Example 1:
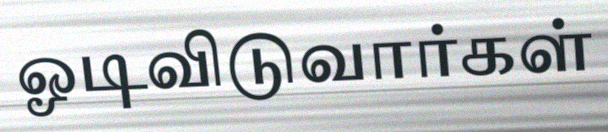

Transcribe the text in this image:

ஓடிவிடுவார்கள்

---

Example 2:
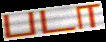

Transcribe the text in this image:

படா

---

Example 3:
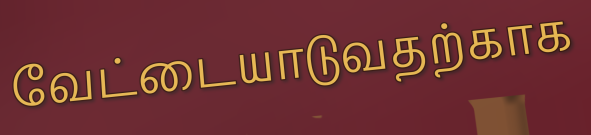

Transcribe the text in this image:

வேட்டையாடுவதற்காக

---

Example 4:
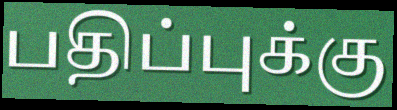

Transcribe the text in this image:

பதிப்புக்கு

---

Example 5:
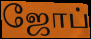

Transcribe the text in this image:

ஜோப்